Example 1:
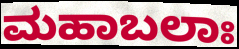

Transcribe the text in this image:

ಮಹಾಬಲಾಃ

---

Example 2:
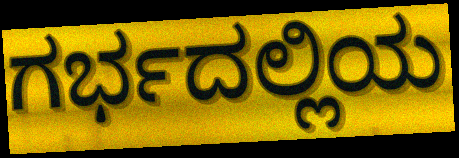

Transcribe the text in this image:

ಗರ್ಭದಲ್ಲಿಯ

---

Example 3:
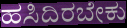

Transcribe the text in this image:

ಹಸಿದಿರಬೇಕು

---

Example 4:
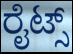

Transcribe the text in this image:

ರೈಟ್ಸ್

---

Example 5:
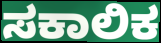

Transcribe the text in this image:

ಸಕಾಲಿಕ